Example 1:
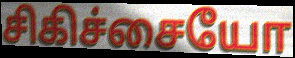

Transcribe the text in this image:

சிகிச்சையோ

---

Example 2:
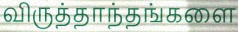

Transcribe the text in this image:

விருத்தாந்தங்களை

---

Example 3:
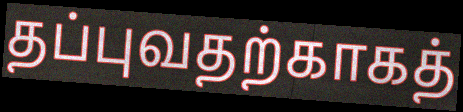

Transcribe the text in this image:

தப்புவதற்காகத்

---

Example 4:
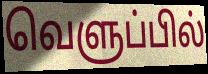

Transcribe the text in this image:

வெளுப்பில்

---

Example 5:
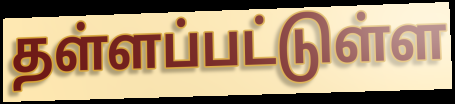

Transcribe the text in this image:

தள்ளப்பட்டுள்ள